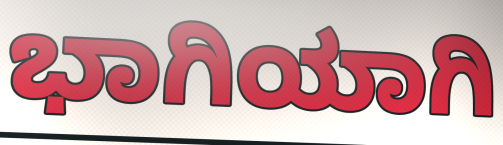
ಭಾಗಿಯಾಗಿ